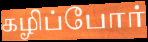
கழிப்போர்